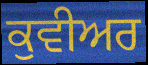
ਕੁਵੀਅਰ